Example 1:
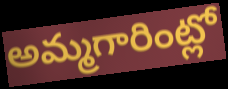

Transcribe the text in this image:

అమ్మగారింట్లో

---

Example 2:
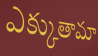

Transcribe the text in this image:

ఎక్కుతామా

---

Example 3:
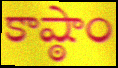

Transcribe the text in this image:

కాష్ఠాం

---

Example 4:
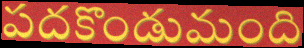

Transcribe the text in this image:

పదకొండుమంది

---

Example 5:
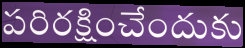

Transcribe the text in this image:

పరిరక్షించేందుకు